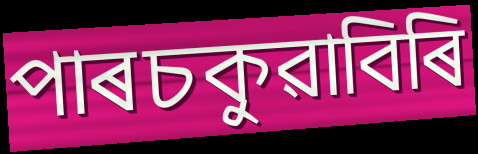
পাৰচকুৱাবিৰি